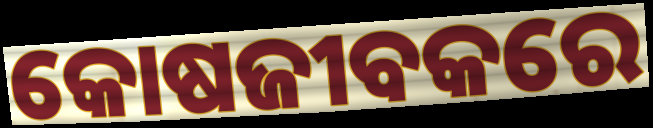
କୋଷଜୀବକରେ